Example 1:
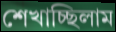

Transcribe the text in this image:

শেখাচ্ছিলাম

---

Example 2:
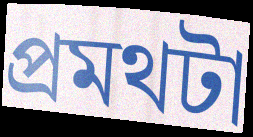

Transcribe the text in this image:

প্রমথটা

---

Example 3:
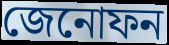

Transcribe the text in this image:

জেনোফন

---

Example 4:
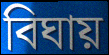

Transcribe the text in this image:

বিঘায়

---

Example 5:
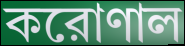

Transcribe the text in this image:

করোণাল